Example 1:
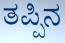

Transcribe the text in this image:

ತಪ್ಪಿನ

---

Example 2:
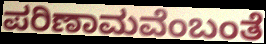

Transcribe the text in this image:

ಪರಿಣಾಮವೆಂಬಂತೆ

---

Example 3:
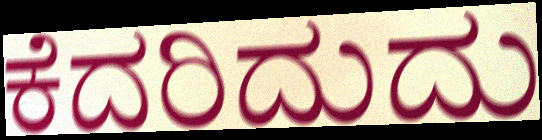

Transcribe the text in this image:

ಕೆದರಿದುದು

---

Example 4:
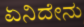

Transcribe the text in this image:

ಏನಿದೇನು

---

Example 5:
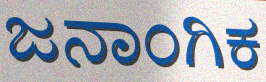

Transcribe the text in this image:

ಜನಾಂಗಿಕ